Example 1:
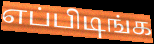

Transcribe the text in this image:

எப்பிடிங்க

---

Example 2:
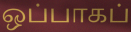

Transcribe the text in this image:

ஒப்பாகப்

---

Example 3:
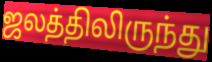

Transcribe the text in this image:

ஜலத்திலிருந்து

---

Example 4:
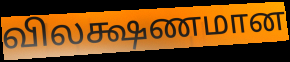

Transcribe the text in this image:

விலக்ஷணமான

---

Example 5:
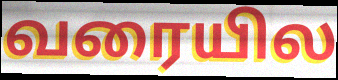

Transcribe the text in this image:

வரையில